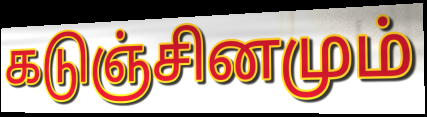
கடுஞ்சினமும்